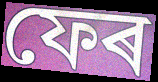
ফেৰ